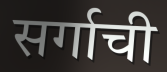
सर्गाची